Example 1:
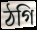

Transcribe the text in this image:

ঠগি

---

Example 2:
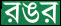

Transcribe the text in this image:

রঙর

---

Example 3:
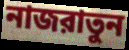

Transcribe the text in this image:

নাজরাতুন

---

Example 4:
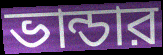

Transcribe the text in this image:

ভান্ডার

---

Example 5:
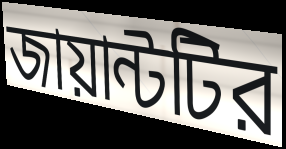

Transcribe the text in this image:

জায়ান্টটির